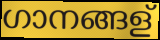
ഗാനങ്ങള്